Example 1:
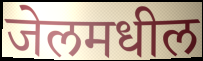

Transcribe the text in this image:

जेलमधील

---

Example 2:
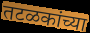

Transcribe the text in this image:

तटळकांच्या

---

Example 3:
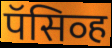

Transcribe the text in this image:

पॅसिव्ह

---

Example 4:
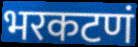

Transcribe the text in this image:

भरकटणं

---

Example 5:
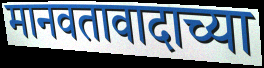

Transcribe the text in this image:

मानवतावादाच्या